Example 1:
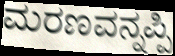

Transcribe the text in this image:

ಮರಣವನ್ನಪ್ಪಿ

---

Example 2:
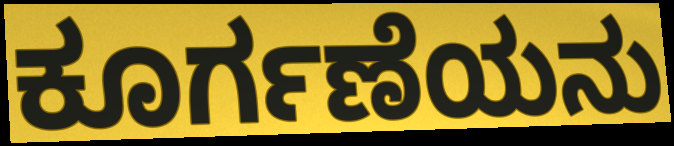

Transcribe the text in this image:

ಕೂರ್ಗಣೆಯನು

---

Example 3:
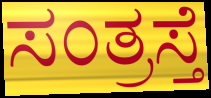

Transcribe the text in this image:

ಸಂತ್ರಸ್ತೆ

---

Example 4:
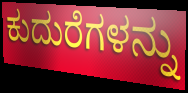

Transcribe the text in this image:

ಕುದುರೆಗಳನ್ನು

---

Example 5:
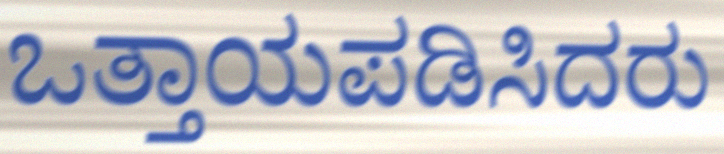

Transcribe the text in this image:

ಒತ್ತಾಯಪಡಿಸಿದರು